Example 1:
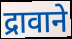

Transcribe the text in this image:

द्रावाने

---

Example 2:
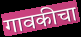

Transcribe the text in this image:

गावकीचा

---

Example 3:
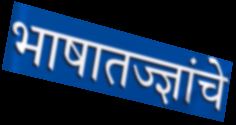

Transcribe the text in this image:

भाषातज्ज्ञांचे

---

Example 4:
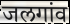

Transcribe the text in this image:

जलगांव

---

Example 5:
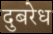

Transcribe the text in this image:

दुबरेध